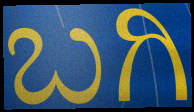
ಬಗಿ